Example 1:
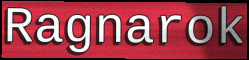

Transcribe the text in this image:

Ragnarok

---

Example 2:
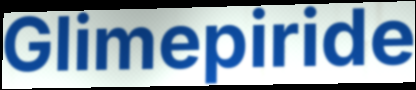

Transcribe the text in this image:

Glimepiride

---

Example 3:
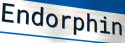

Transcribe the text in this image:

Endorphin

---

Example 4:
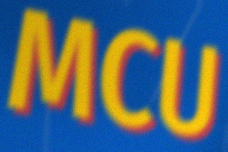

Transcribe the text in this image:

MCU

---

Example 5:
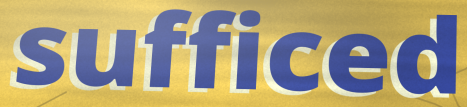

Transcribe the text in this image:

sufficed